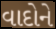
વાદોને